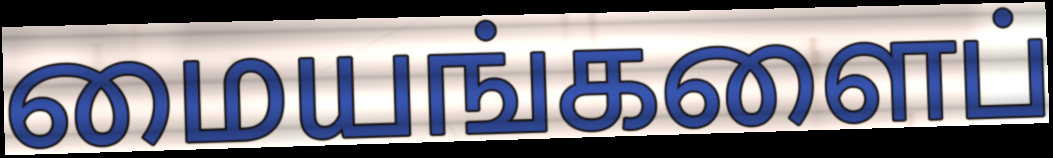
மையங்களைப்